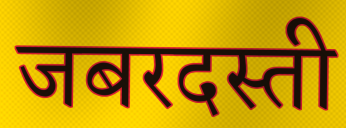
जबरदस्ती